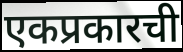
एकप्रकारची